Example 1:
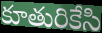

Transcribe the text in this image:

కూతురికేసి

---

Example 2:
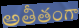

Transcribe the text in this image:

అతీతంగా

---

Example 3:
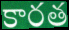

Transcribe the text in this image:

కారత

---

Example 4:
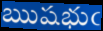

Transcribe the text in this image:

ఋషభుఁ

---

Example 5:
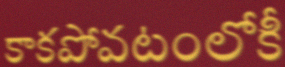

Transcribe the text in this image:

కాకపోవటంలోకీ